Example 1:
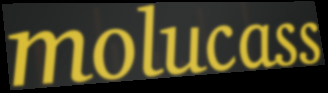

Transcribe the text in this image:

molucass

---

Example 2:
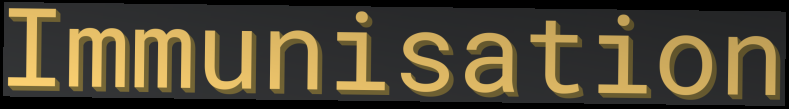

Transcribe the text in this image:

Immunisation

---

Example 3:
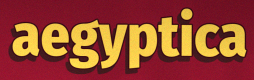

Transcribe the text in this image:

aegyptica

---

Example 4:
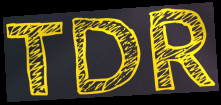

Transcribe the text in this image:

TDR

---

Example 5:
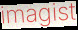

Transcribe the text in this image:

imagist